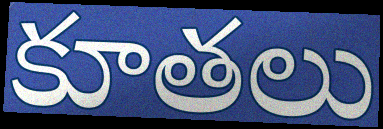
కూతలు